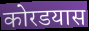
कोरडयास